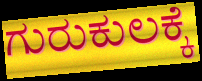
ಗುರುಕುಲಕ್ಕೆ